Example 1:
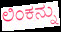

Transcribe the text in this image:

ಲಿಂಕನ್ನು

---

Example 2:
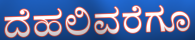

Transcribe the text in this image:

ದೆಹಲಿವರೆಗೂ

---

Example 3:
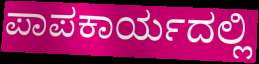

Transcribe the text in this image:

ಪಾಪಕಾರ್ಯದಲ್ಲಿ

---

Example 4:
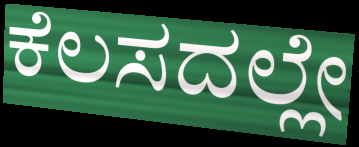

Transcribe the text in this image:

ಕೆಲಸದಲ್ಲೇ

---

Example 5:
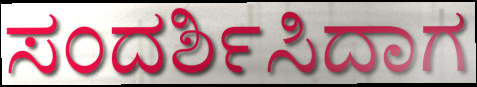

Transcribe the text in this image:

ಸಂದರ್ಶಿಸಿದಾಗ